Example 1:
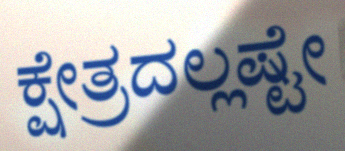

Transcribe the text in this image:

ಕ್ಷೇತ್ರದಲ್ಲಷ್ಟೇ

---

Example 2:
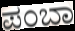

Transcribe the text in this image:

ಪಂಬಾ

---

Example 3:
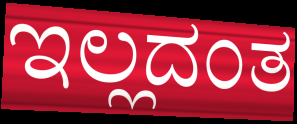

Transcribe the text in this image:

ಇಲ್ಲದಂತ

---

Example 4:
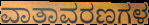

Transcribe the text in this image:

ವಾತಾವರಣಗಳ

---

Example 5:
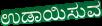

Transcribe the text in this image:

ಉಡಾಯಿಸುವ